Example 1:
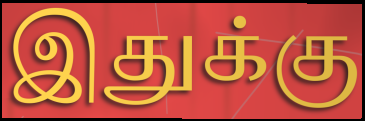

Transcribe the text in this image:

இதுக்கு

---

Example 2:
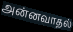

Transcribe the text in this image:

அன்னவாதல்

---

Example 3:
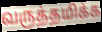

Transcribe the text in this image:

வருத்தமிக்க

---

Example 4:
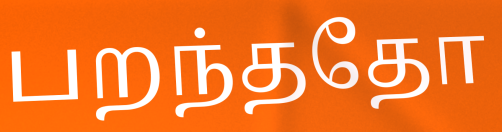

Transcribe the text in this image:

பறந்ததோ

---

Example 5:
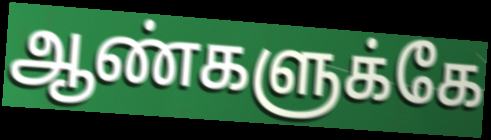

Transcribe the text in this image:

ஆண்களுக்கே